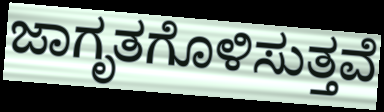
ಜಾಗೃತಗೊಳಿಸುತ್ತವೆ